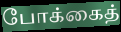
போக்கைத்